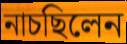
নাচছিলেন